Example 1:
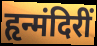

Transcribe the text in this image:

हृन्मंदिरीं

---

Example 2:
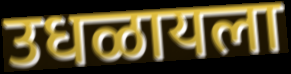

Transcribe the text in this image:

उधळायला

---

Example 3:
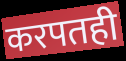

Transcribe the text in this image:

करपतही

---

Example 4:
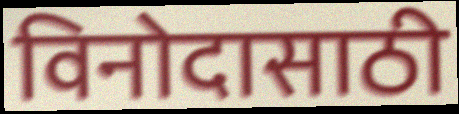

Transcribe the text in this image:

विनोदासाठी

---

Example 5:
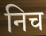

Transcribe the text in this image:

निच